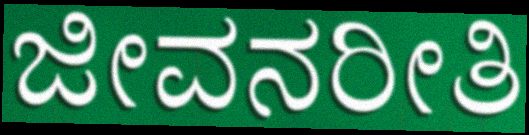
ಜೀವನರೀತಿ